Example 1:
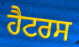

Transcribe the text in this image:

ਹੈਟਰਸ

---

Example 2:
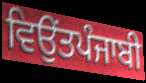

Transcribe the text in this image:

ਵਿਉਂਤਪੰਜਾਬੀ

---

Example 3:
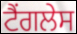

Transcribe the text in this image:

ਟੈਂਗਲੇਸ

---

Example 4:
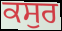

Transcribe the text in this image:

ਕਸੁਰ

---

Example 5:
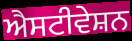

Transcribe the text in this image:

ਐਸਟੀਵੇਸ਼ਨ